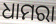
ଧାମରା